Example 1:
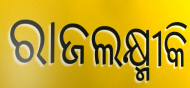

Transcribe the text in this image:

ରାଜଲକ୍ଷ୍ମୀକି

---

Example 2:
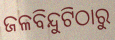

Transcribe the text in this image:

ଜଳବିନ୍ଦୁଟିଠାରୁ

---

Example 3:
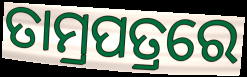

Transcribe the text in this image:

ତାମ୍ରପତ୍ରରେ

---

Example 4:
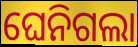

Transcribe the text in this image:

ଘେନିଗଲା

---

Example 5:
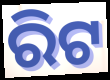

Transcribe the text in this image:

ରିଟ